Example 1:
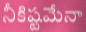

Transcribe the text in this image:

నీకిష్టమేనా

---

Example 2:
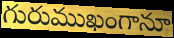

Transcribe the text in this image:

గురుముఖంగానూ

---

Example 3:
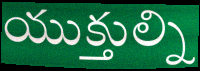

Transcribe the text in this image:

యుక్తుల్ని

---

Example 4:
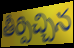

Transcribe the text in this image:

తీర్పిచ్చిన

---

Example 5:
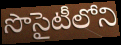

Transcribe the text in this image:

సొసైటీలోని